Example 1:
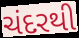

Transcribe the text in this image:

ચંદરથી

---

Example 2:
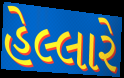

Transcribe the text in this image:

હેલ્લારે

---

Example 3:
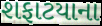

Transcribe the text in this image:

શફાટયાના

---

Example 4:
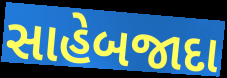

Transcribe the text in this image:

સાહેબજાદા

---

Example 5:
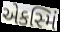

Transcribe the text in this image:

એકસ્મિં